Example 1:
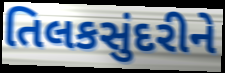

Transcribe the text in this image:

તિલકસુંદરીને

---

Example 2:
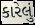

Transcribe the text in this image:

કારેલું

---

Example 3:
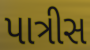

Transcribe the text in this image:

પાત્રીસ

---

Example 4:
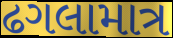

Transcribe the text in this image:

ઢગલામાત્ર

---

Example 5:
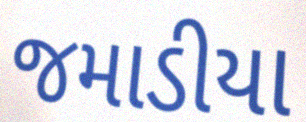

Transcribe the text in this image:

જમાડીયા